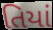
તિયાં